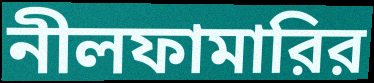
নীলফামারির